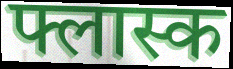
फ्लास्क